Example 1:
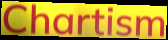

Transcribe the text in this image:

Chartism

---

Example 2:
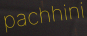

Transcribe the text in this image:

pachhini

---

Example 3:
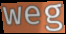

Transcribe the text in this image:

weg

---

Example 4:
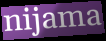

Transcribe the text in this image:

nijama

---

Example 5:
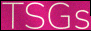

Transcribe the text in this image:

TSGs